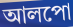
আলপো